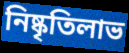
নিষ্কৃতিলাভ